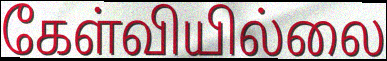
கேள்வியில்லை